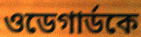
ওডেগার্ডকে